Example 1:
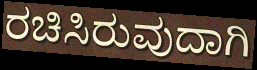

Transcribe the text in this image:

ರಚಿಸಿರುವುದಾಗಿ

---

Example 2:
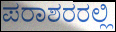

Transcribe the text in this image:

ಪರಾಶರರಲ್ಲಿ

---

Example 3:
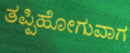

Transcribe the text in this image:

ತಪ್ಪಿಹೋಗುವಾಗ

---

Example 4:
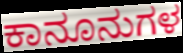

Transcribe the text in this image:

ಕಾನೂನುಗಳ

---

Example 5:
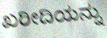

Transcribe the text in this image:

ಖರೀದಿಯನ್ನು